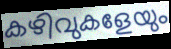
കഴിവുകളേയും